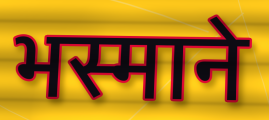
भस्माने